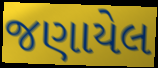
જણાયેલ